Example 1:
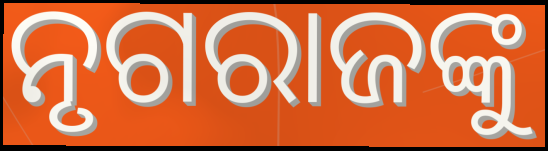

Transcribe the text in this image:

ନୃଗରାଜଙ୍କୁ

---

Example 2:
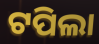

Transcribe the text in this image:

ଟପିଲା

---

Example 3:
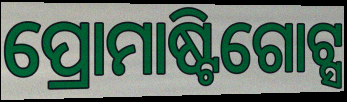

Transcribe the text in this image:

ପ୍ରୋମାଷ୍ଟିଗୋଟ୍ସ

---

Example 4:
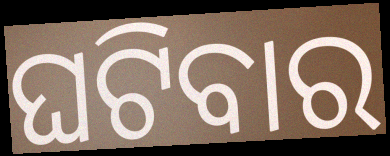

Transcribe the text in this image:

ଘଟିବାର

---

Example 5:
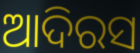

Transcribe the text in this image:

ଆଦିରସ